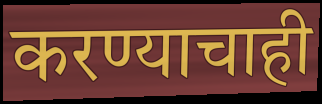
करण्याचाही